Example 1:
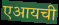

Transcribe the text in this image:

एआयची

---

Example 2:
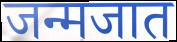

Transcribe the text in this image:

जन्मजात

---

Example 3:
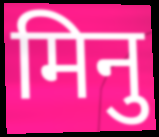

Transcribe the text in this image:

मिनु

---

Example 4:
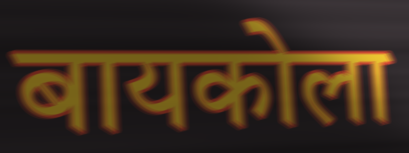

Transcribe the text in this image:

बायकोला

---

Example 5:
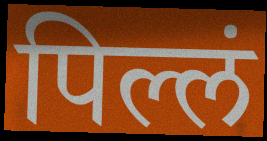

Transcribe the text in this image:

पिल्लं